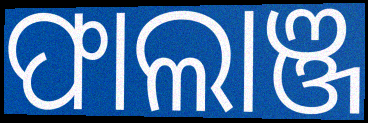
ଫାଲାଞ୍ଜ